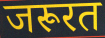
जरूरत